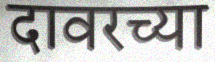
दावरच्या